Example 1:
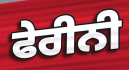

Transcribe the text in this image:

ਫੇਰੀਨੀ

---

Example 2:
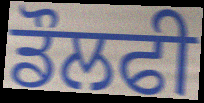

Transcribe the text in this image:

ਡੌਲਫੀ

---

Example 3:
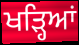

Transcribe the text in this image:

ਖੜ੍ਹਿਆਂ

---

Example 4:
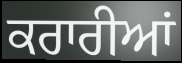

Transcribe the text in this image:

ਕਰਾਰੀਆਂ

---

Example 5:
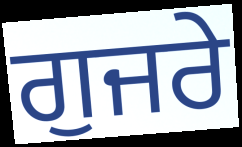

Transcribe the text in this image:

ਗੁਜਰੇ